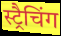
स्ट्रैचिंग